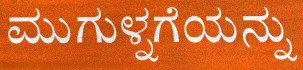
ಮುಗುಳ್ನಗೆಯನ್ನು